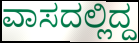
ವಾಸದಲ್ಲಿದ್ದ